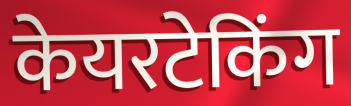
केयरटेकिंग